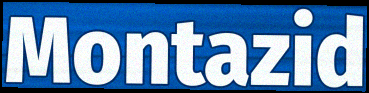
Montazid